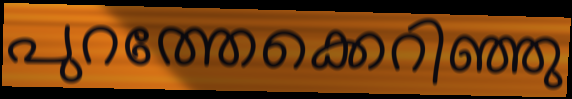
പുറത്തേക്കെറിഞ്ഞു